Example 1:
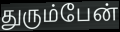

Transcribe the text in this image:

துரும்பேன்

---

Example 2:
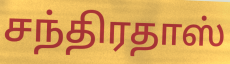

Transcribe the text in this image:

சந்திரதாஸ்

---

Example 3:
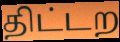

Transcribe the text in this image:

திட்டற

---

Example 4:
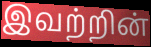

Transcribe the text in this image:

இவற்றின்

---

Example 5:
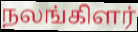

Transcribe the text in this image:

நலங்கிளர்